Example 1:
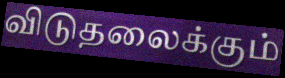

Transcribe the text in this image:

விடுதலைக்கும்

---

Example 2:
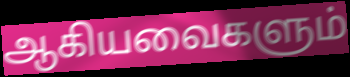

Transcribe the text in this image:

ஆகியவைகளும்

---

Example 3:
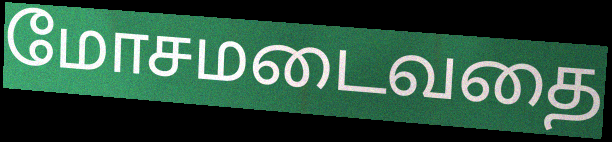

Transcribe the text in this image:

மோசமடைவதை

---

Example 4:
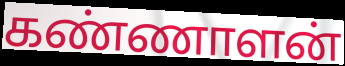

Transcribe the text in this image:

கண்ணாளன்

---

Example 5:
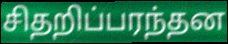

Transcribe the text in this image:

சிதறிப்பரந்தன